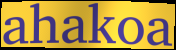
ahakoa